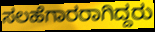
ಸಲಹೆಗಾರರಾಗಿದ್ದರು